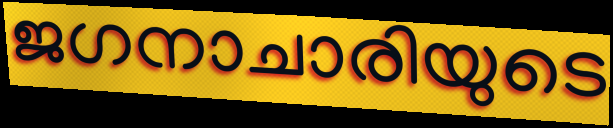
ജഗനാചാരിയുടെ